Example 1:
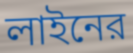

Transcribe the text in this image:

লাইনের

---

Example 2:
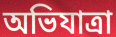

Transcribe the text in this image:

অভিযাত্রা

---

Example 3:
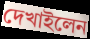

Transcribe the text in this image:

দেখাইলেন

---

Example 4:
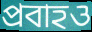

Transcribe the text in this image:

প্রবাহও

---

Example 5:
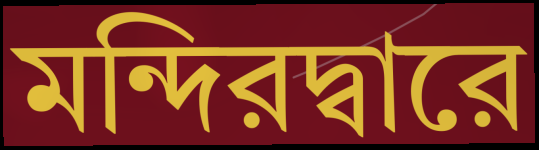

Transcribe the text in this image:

মন্দিরদ্বারে